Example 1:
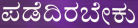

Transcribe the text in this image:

ಪಡೆದಿರಬೇಕು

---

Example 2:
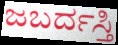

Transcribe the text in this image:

ಜಬರ್ದಸ್ತಿ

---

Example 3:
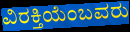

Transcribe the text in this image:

ವಿರಕ್ತಿಯೆಂಬವರು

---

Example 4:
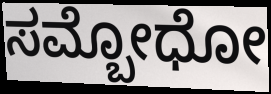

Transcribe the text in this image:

ಸಮ್ಬೋಧೋ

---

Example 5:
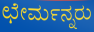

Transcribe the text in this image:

ಛೇರ್ಮನ್ನರು